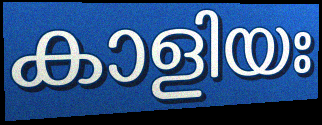
കാളിയഃ